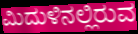
ಮಿದುಳಿನಲ್ಲಿರುವ